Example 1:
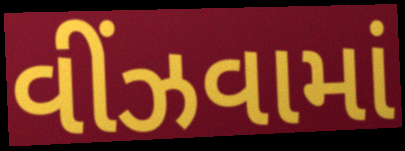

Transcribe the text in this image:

વીંઝવામાં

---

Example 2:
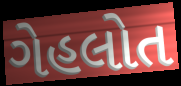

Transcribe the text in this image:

ગેહલોત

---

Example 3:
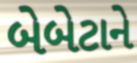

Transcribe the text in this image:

બેબેટાને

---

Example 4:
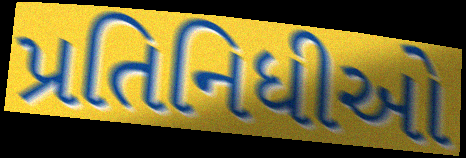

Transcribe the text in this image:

પ્રતિનિધીઓ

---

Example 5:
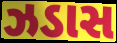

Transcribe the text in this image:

ઝડાસ